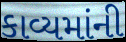
કાવ્યમાંની